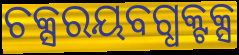
ଚକ୍ସରୟବଗ୍ଧକ୍ଟକ୍ସ